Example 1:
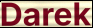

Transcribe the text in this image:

Darek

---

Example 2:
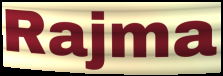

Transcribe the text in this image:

Rajma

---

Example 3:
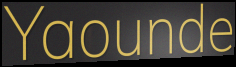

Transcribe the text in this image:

Yaounde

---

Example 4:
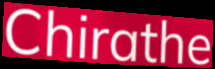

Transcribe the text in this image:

Chirathe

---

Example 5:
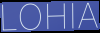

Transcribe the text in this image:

LOHIA